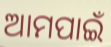
ଆମପାଇଁ